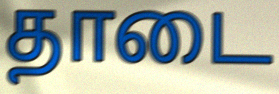
தாடை